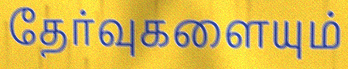
தேர்வுகளையும்